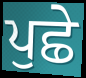
ਪੁਛੇ